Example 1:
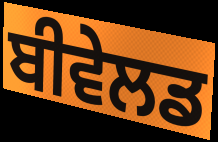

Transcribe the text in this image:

ਬੀਵੇਲਡ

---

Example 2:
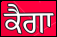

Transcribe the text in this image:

ਕੈਗਾ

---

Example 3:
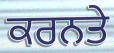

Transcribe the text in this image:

ਕਰਨਤੇ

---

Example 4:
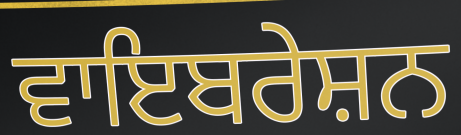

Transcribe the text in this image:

ਵਾਇਬਰੇਸ਼ਨ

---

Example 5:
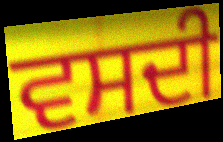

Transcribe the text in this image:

ਵਸਦੀ